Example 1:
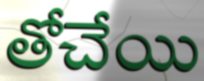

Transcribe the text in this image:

తోచేయి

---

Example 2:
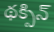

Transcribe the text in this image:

థక్సిన్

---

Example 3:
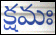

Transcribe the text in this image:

క్షమః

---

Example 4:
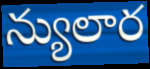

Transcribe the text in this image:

న్యులార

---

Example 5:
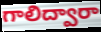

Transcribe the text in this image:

గాలిద్వారా